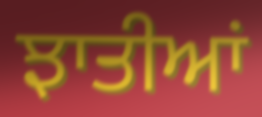
ਝਾਤੀਆਂ